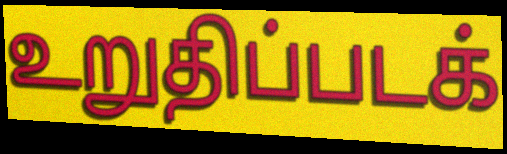
உறுதிப்படக்